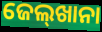
ଜେଲ୍‌ଖାନା